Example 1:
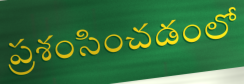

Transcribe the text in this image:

ప్రశంసించడంలో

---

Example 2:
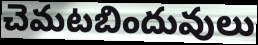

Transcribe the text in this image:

చెమటబిందువులు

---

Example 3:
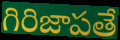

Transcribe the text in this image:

గిరిజాపతే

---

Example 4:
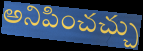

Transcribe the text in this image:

అనిపించచ్చు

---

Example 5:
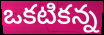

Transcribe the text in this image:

ఒకటికన్న